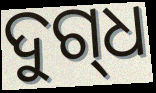
ଦୁଗ୍‌ଧ